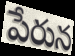
పేరున